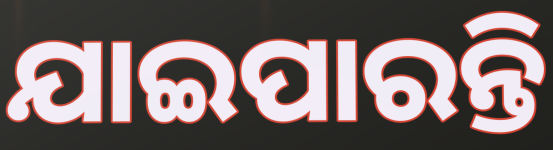
ଯାଇପାରନ୍ତି